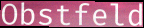
Obstfeld